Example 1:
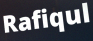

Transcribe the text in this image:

Rafiqul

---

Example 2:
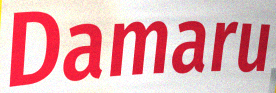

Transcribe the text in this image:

Damaru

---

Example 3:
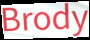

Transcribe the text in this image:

Brody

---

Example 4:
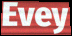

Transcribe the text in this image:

Evey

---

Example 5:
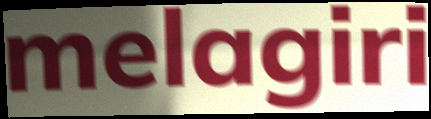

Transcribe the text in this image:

melagiri